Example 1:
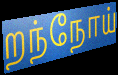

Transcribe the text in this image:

றந்நோய்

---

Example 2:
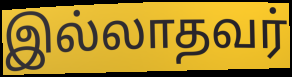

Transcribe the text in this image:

இல்லாதவர்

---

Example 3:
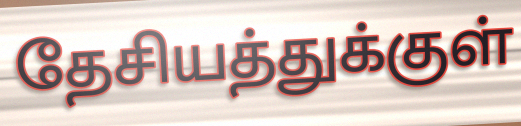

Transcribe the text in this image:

தேசியத்துக்குள்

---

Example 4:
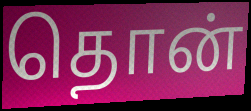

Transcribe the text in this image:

தொன்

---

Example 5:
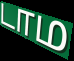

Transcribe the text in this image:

டாம